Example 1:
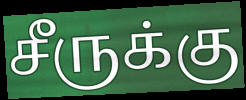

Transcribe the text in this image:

சீருக்கு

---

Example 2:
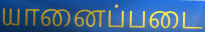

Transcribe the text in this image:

யானைப்படை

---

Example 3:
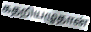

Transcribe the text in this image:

கதறியழுதான்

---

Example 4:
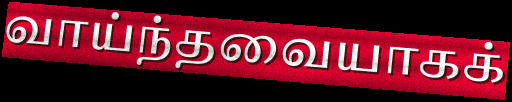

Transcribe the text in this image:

வாய்ந்தவையாகக்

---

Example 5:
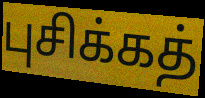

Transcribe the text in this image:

புசிக்கத்